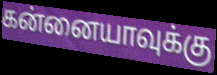
கன்னையாவுக்கு